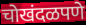
चोखंदळपणे